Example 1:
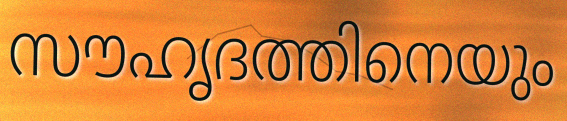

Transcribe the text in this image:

സൗഹൃദത്തിനെയും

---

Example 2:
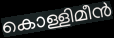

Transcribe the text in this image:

കൊള്ളിമീൻ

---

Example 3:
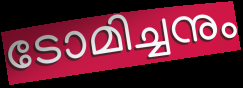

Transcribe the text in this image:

ടോമിച്ചനും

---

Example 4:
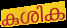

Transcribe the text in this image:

കുശിക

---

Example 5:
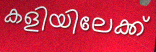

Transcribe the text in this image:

കളിയിലേക്ക്